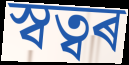
স্বত্বৰ